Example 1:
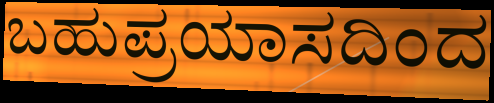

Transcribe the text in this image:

ಬಹುಪ್ರಯಾಸದಿಂದ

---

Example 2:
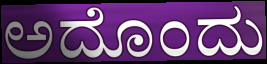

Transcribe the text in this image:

ಅದೊಂದು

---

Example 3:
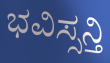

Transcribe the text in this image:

ಭವಿಸ್ಸನ್ತಿ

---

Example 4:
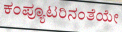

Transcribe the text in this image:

ಕಂಪ್ಯೂಟರಿನಂತೆಯೇ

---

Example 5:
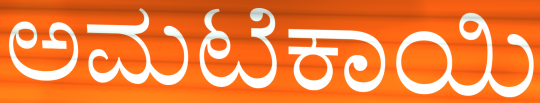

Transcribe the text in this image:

ಅಮಟೆಕಾಯಿ